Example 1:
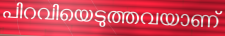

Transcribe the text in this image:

പിറവിയെടുത്തവയാണ്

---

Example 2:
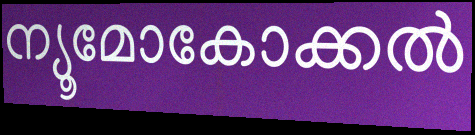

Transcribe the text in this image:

ന്യൂമോകോക്കൽ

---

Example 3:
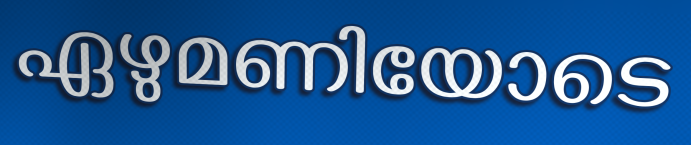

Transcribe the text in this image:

ഏഴുമണിയോടെ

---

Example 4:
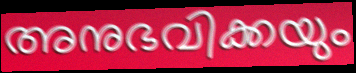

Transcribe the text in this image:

അനുഭവിക്കയും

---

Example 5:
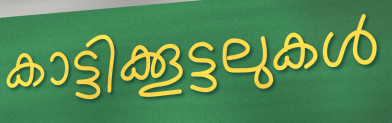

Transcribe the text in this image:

കാട്ടിക്കൂട്ടലുകൾ